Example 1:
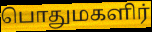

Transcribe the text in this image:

பொதுமகளிர்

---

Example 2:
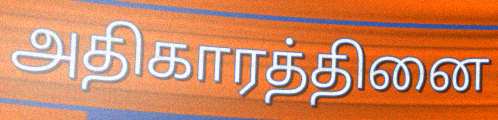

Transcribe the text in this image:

அதிகாரத்தினை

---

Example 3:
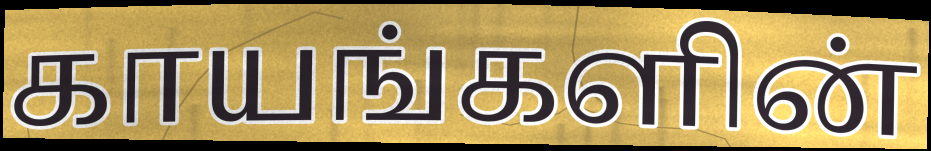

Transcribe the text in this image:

காயங்களின்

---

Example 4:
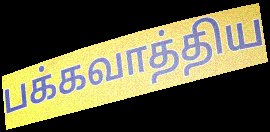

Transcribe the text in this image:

பக்கவாத்திய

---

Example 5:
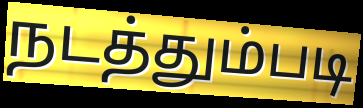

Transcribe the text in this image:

நடத்தும்படி